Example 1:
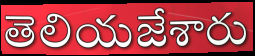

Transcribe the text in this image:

తెలియజేశారు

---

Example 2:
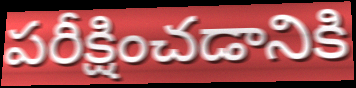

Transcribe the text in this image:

పరీక్షించడానికి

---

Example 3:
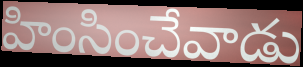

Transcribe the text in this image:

హింసించేవాడు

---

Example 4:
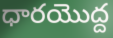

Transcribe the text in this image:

ధారయొద్ద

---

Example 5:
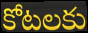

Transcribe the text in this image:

కోటలకు